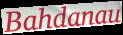
Bahdanau